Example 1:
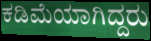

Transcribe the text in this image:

ಕಡಿಮೆಯಾಗಿದ್ದರು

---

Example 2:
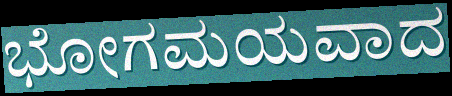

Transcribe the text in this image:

ಭೋಗಮಯವಾದ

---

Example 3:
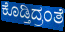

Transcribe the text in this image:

ಕೊಡ್ತಿದ್ರಂತೆ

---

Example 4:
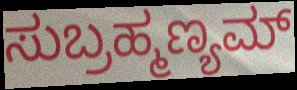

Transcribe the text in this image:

ಸುಬ್ರಹ್ಮಣ್ಯಮ್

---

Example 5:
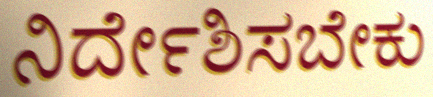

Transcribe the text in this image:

ನಿರ್ದೇಶಿಸಬೇಕು